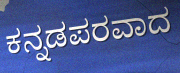
ಕನ್ನಡಪರವಾದ